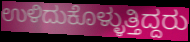
ಉಳಿದುಕೊಳ್ಳುತ್ತಿದ್ದರು